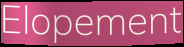
Elopement